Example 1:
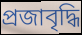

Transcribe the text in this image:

প্রজাবৃদ্ধি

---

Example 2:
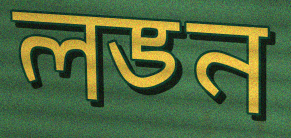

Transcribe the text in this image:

লঙ্ন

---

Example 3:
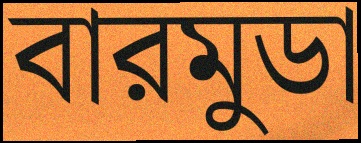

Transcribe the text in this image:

বারমুডা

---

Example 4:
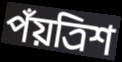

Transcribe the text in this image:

পঁয়ত্রিশ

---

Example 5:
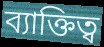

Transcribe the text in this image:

ব্যাক্তিত্ব